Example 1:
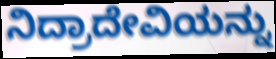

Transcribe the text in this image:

ನಿದ್ರಾದೇವಿಯನ್ನು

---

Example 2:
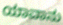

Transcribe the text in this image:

ಯಾವಾನು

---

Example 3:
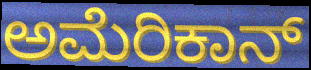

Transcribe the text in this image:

ಅಮೆರಿಕಾನ್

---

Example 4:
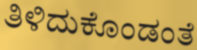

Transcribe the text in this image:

ತಿಳಿದುಕೊಂಡಂತೆ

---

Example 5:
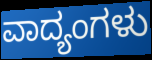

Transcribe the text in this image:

ವಾದ್ಯಂಗಳು